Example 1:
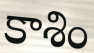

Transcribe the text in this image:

కాశిం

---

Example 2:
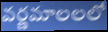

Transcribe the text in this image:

వర్ణమాలలలో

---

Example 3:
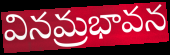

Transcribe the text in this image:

వినమ్రభావన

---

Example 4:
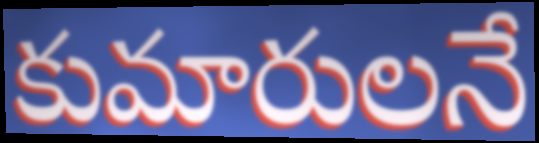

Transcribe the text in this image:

కుమారులనే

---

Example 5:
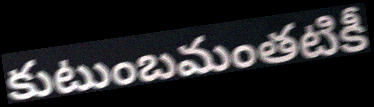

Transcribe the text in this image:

కుటుంబమంతటికీ